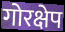
गोरक्षेप